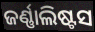
ଜର୍ଣ୍ଣାଲିଷ୍ଟସ